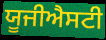
ਯੂਜੀਐਸਟੀ